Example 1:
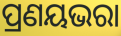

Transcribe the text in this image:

ପ୍ରଣୟଭରା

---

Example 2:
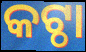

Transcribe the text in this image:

କଟ୍ଠା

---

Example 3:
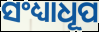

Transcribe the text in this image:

ସଂଧ୍ୟାଧୂପ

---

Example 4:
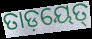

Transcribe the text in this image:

ତାଡ଼ୟେତ୍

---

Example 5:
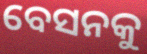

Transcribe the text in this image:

ବେସନକୁ